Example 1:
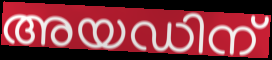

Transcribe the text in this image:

അയഡിന്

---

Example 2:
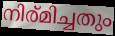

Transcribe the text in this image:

നിര്മിച്ചതും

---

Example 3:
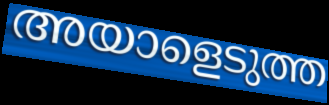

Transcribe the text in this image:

അയാളെടുത്ത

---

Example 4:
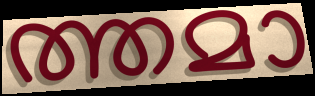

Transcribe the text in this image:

ത്തമാ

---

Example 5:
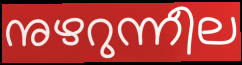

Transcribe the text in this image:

നുഴറുന്നീല